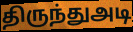
திருந்துஅடி